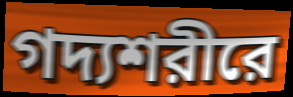
গদ্যশরীরে